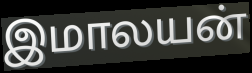
இமாலயன்